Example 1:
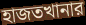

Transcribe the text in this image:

হাজতখানার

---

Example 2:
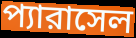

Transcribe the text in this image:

প্যারাসেল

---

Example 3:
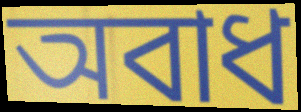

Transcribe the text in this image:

অবাধ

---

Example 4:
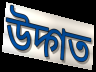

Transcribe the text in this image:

উদ্গত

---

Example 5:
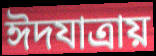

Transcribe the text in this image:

ঈদযাত্রায়